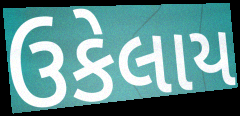
ઉકેલાય